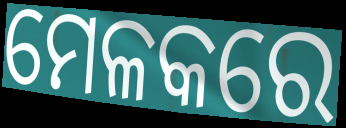
ମେଳକରେ